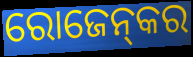
ରୋଜେନ୍‌କର